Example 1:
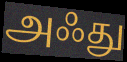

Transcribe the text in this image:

அஃது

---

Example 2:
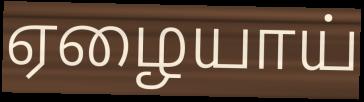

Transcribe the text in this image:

ஏழையாய்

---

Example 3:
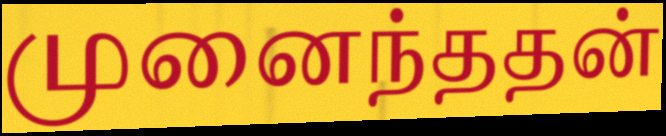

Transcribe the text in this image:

முனைந்ததன்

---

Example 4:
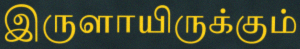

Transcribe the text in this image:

இருளாயிருக்கும்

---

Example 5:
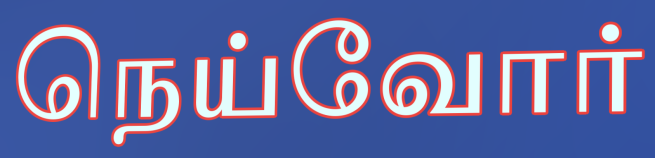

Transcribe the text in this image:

நெய்வோர்